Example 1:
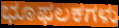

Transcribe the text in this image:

ಭೂಫಲಕಗಳು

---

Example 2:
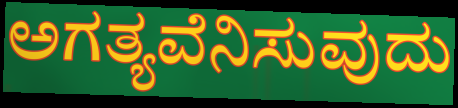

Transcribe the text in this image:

ಅಗತ್ಯವೆನಿಸುವುದು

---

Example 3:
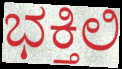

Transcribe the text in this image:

ಭಕ್ತಿಲಿ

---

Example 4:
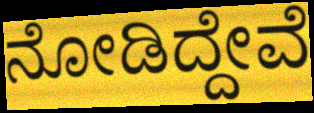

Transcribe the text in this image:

ನೋಡಿದ್ದೇವೆ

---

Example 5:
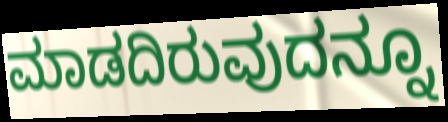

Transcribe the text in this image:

ಮಾಡದಿರುವುದನ್ನೂ